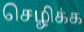
செழிக்க